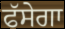
ਫੱਸੇਗਾ